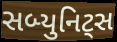
સબ્યુનિટ્સ